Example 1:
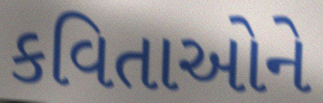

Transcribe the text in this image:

કવિતાઓને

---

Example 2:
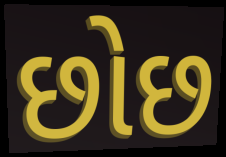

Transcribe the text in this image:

છોછ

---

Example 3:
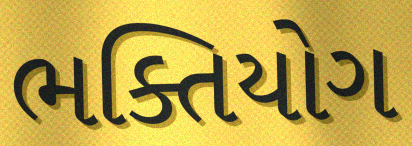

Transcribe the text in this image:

ભક્તિયોગ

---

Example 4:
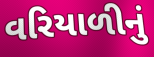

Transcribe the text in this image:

વરિયાળીનું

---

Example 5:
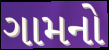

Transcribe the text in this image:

ગામનો